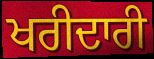
ਖਰੀਦਾਰੀ